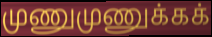
முணுமுணுக்கக்